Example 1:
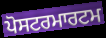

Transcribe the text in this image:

ਪੋਸਟਰਮਾਰਟਮ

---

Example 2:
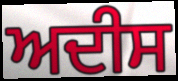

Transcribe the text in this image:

ਅਦੀਸ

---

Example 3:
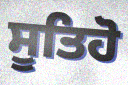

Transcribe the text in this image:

ਸੂਤਿਹੋ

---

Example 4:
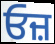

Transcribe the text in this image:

ਓਜ਼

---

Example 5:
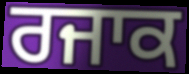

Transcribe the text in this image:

ਰਜਾਕ